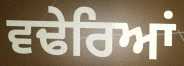
ਵਢੇਰਿਆਂ